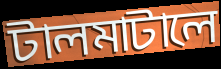
টালমাটালে